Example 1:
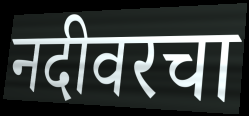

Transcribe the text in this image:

नदीवरचा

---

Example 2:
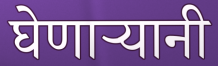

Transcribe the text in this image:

घेणाऱ्यानी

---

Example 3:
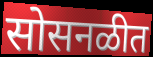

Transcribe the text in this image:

सोसनळीत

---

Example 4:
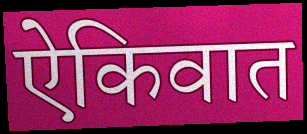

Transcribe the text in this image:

ऐकिवात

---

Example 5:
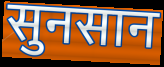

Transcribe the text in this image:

सुनसान